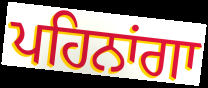
ਪਹਿਨਾਂਗਾ